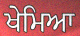
ਖੇਮਿਆ